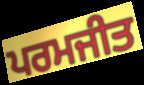
ਪਰਮਜੀਤ